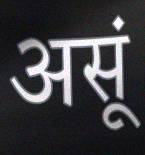
असूं